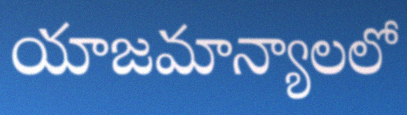
యాజమాన్యాలలో